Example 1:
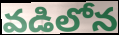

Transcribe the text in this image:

వడిలోన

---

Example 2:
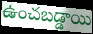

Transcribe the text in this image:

ఉంచబడ్డాయి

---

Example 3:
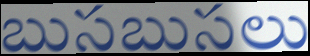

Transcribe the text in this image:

బుసబుసలు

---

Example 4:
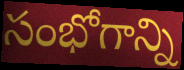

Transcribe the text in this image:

సంభోగాన్ని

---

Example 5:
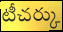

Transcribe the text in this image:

టీచర్కు